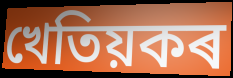
খেতিয়কৰ